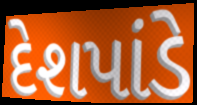
દેશપાંડે